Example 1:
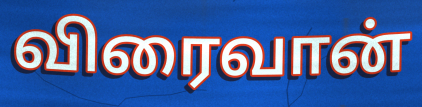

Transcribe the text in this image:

விரைவான்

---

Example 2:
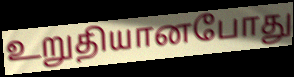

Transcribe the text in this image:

உறுதியானபோது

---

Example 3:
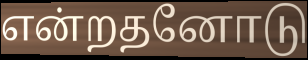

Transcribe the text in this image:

என்றதனோடு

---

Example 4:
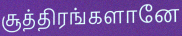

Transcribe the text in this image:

சூத்திரங்களானே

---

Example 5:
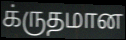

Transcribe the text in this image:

க்ருதமான